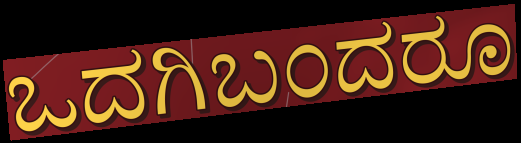
ಒದಗಿಬಂದರೂ